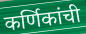
कर्णिकांची